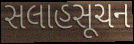
સલાહસૂચન